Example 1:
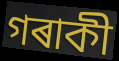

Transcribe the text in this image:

গৰাকী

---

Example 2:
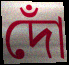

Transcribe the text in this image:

দোঁ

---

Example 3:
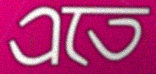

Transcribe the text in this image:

এতে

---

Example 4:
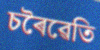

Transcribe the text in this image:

চৰৈৱেতি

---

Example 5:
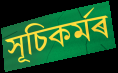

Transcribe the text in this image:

সূচিকৰ্মৰ